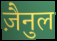
ज़ैनुल